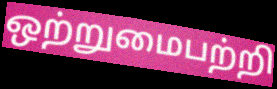
ஒற்றுமைபற்றி